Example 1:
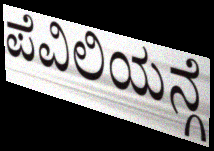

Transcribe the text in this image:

ಪೆವಿಲಿಯನ್ಗೆ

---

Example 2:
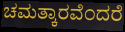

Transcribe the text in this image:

ಚಮತ್ಕಾರವೆಂದರೆ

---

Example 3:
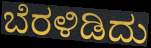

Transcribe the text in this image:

ಬೆರಳಿಡಿದು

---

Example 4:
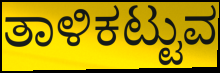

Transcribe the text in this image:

ತಾಳಿಕಟ್ಟುವ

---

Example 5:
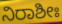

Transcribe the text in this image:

ನಿರಾಶೀಃ